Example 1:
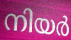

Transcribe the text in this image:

നിയർ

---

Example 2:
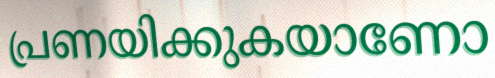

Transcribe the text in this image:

പ്രണയിക്കുകയാണോ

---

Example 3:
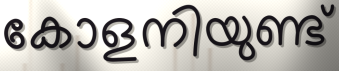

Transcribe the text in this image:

കോളനിയുണ്ട്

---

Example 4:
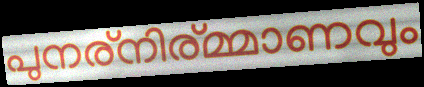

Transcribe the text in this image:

പുനര്നിര്മ്മാണവും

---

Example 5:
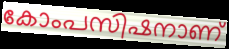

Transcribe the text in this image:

കോംപസിഷനാണ്